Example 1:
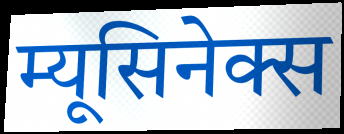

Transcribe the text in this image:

म्यूसिनेक्स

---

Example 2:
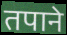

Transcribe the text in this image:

तपाने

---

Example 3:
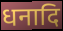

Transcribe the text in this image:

धनादि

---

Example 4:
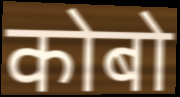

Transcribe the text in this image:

कोबो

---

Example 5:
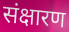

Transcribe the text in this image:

संक्षारण